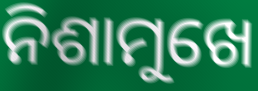
ନିଶାମୁଖେ